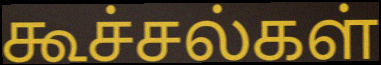
கூச்சல்கள்